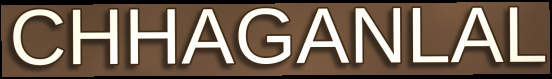
CHHAGANLAL